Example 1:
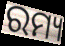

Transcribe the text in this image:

ରମ୍ୟ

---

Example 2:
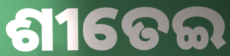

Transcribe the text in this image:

ଶୀତେଇ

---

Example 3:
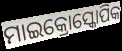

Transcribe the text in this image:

ମାଇକ୍ରୋସ୍କୋପିକ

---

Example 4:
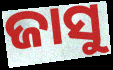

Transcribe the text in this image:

ଜାସୁ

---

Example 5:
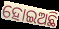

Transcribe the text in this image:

ହୋଇଅଛି